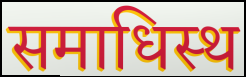
समाधिस्थ